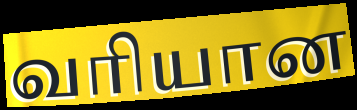
வரியான